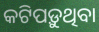
କଟିପଡ଼ୁଥିବା